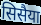
सिसैया